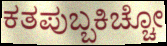
ಕತಪುಬ್ಬಕಿಚ್ಚೋ